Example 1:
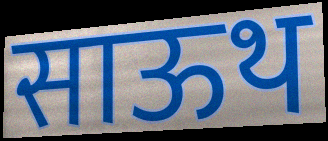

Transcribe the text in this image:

साऊथ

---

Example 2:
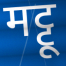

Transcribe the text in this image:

मट्टू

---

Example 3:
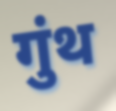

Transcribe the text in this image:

गुंथ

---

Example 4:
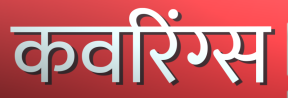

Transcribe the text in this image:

कवरिंग्स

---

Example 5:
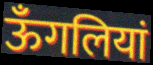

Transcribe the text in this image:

ऊँगलियां